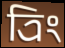
ত্রিং